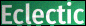
Eclectic